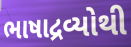
ભાષાદ્રવ્યોથી